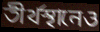
তীর্থস্থানেও